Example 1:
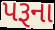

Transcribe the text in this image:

પરૂના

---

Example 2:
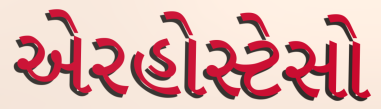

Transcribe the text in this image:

એરહોસ્ટેસો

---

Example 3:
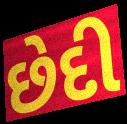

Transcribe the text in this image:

છેદી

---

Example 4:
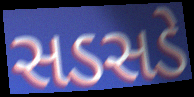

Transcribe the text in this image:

સડસડે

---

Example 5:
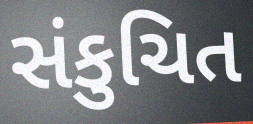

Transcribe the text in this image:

સંકુચિત